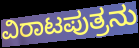
ವಿರಾಟಪುತ್ರನು